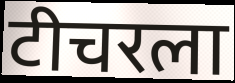
टीचरला